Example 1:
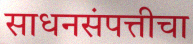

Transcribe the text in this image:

साधनसंपत्तीचा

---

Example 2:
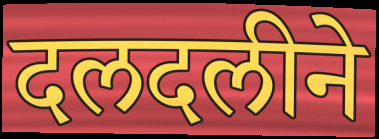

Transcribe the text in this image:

दलदलीने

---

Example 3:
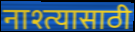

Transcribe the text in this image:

नाश्त्यासाठी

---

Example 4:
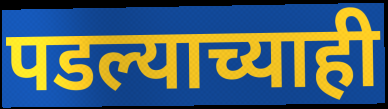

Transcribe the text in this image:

पडल्याच्याही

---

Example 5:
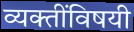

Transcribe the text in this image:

व्यक्तींविषयी